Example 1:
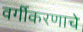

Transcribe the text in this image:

वर्गीकरणाचे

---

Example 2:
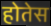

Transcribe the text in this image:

होतेस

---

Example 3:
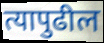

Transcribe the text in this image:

त्यापुढील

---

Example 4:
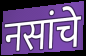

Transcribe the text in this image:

नसांचे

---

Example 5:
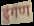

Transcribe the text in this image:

ढुंगण